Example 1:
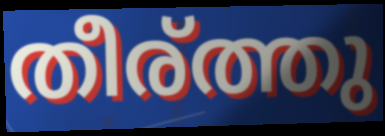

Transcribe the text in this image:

തീര്ത്തു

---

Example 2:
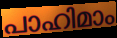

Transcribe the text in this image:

പാഹിമാം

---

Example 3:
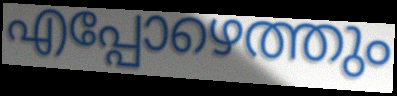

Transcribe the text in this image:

എപ്പോഴെത്തും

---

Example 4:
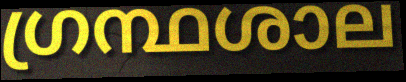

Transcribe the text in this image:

ഗ്രന്ഥശാല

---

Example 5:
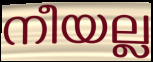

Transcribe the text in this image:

നീയല്ല